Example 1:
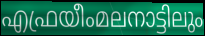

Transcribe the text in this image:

എഫ്രയീംമലനാട്ടിലും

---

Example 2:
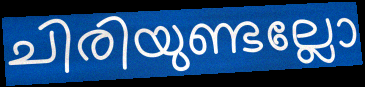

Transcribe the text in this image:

ചിരിയുണ്ടല്ലോ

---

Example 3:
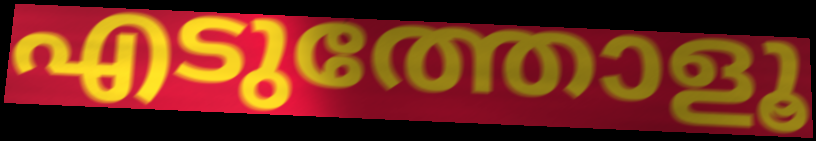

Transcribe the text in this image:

എടുത്തോളൂ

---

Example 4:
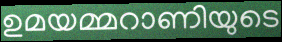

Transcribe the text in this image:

ഉമയമ്മറാണിയുടെ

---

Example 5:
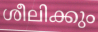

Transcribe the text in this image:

ശീലിക്കും